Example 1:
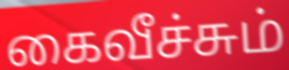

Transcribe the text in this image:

கைவீச்சும்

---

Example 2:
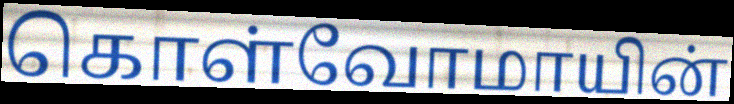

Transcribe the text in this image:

கொள்வோமாயின்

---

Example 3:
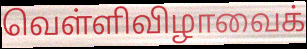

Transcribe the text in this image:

வெள்ளிவிழாவைக்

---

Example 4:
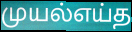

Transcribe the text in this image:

முயல்எய்த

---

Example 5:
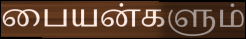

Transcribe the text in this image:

பையன்களும்